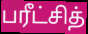
பரீட்சித்